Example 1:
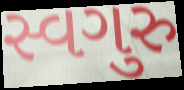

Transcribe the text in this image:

સ્વગુરુ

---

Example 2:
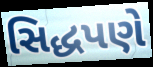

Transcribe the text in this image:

સિદ્ધપણે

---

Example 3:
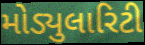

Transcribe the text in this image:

મોડ્યુલારિટી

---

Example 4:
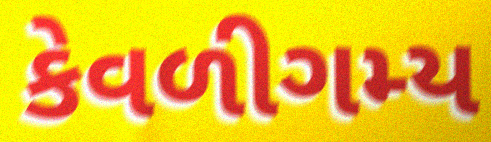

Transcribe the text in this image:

કેવળીગમ્ય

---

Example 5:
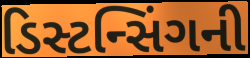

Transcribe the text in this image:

ડિસ્ટન્સિંગની